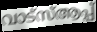
വാട്സ്ആപ്പ്